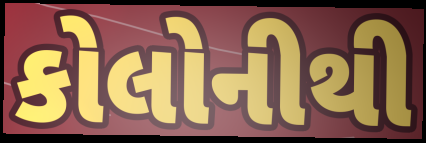
કોલોનીથી